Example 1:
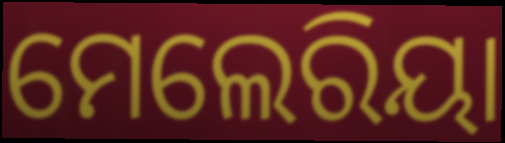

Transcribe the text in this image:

ମେଲେରିୟା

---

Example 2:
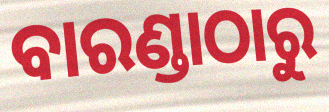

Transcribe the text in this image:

ବାରଣ୍ଡାଠାରୁ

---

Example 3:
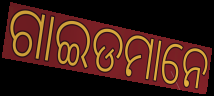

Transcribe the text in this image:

ଗାଇଡମାନେ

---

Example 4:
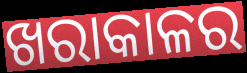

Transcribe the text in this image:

ଖରାକାଳର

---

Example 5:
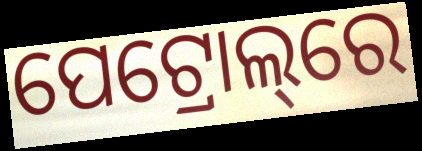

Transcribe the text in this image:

ପେଟ୍ରୋଲ୍‌ରେ